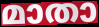
മാതാ